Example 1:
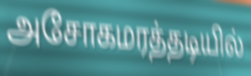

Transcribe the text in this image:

அசோகமரத்தடியில்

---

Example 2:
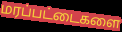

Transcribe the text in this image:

மரப்பட்டைகளை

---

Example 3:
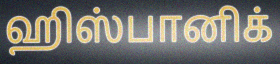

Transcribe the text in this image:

ஹிஸ்பானிக்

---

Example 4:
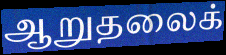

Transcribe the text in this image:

ஆறுதலைக்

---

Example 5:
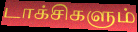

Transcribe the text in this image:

டாக்சிகளும்